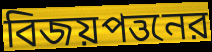
বিজয়পত্তনের